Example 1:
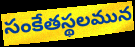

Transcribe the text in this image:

సంకేతస్థలమున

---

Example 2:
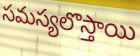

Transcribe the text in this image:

సమస్యలొస్తాయి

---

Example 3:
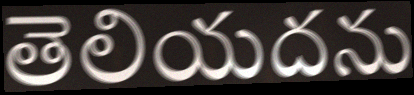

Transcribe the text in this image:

తెలియదను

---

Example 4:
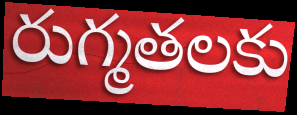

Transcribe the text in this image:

రుగ్మతలకు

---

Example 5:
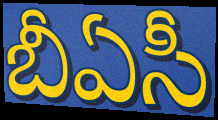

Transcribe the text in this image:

బీఏసీ